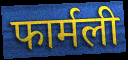
फार्मली